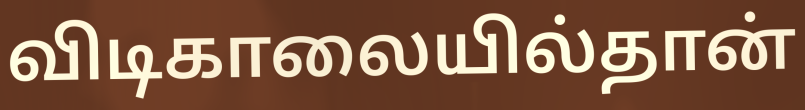
விடிகாலையில்தான்